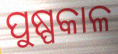
ପୁଷ୍ପକାଳ